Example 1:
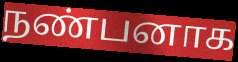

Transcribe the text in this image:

நண்பனாக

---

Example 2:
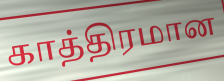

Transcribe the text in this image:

காத்திரமான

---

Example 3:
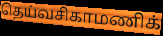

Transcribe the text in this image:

தெய்வசிகாமணிக்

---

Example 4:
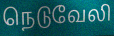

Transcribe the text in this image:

நெடுவேலி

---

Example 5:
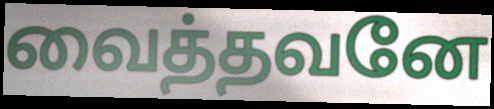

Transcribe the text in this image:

வைத்தவனே